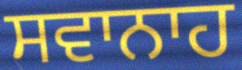
ਸਵਾਨਾਹ